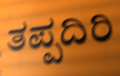
ತಪ್ಪದಿರಿ